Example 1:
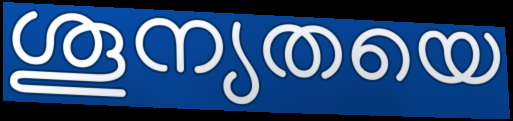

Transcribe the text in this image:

ശൂന്യതയെ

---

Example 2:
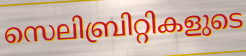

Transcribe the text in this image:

സെലിബ്രിറ്റികളുടെ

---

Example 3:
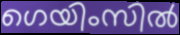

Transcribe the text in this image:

ഗെയിംസിൽ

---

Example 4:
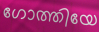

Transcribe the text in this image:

ഗോത്തിയേ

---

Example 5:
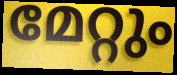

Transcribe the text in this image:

മേറ്റും